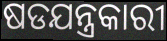
ଷଡଯନ୍ତ୍ରକାରୀ